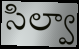
సిల్వా